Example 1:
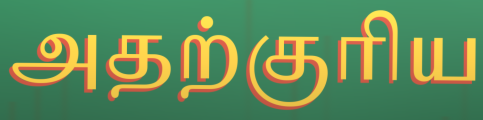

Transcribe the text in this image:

அதற்குரிய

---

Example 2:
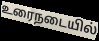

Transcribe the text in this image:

உரைநடையில்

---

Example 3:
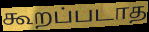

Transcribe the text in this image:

கூறப்படாத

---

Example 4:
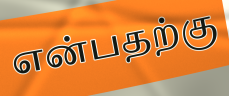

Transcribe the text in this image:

என்பதற்கு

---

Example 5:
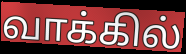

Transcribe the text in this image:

வாக்கில்